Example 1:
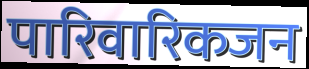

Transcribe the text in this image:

पारिवारिकजन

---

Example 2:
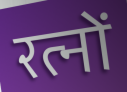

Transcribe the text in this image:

रत्‍नों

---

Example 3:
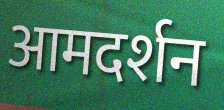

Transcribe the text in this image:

आमदर्शन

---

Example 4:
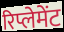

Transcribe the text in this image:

रिप्लेमेंट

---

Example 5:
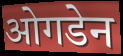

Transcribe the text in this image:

ओगडेन